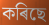
কৰিছে